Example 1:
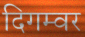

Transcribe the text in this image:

दिगम्वर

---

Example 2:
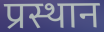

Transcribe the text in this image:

प्रस्थान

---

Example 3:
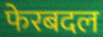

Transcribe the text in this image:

फेरबदल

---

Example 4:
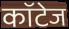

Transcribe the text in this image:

कॉटेज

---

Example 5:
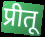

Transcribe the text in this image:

प्रीतू